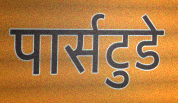
पार्सटुडे